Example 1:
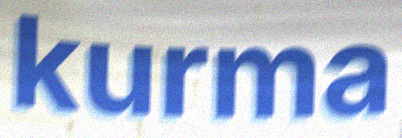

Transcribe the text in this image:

kurma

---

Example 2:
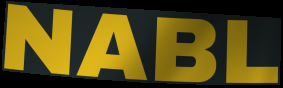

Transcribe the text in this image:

NABL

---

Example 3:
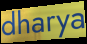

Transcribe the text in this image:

dharya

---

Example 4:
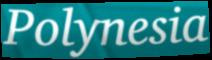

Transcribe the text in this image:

Polynesia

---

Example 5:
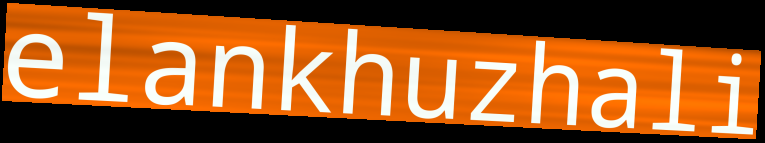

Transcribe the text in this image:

elankhuzhali